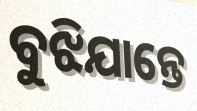
ବୁଝିଯାନ୍ତେ